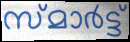
സ്മാർട്ട്